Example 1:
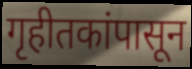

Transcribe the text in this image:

गृहीतकांपासून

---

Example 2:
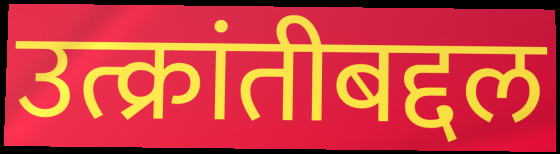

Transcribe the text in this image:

उत्क्रांतीबद्दल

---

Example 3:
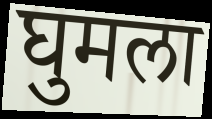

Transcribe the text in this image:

घुमला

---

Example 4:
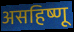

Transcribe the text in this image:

असहिष्णू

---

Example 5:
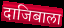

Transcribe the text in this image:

दाजिबाला